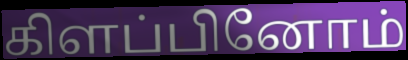
கிளப்பினோம்